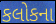
કલોકના